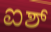
ಐಶ್